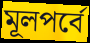
মূলপর্বে